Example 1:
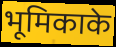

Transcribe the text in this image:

भूमिकाके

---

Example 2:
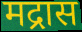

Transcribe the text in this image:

मद्रास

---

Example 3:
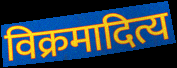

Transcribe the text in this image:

विक्रमादित्य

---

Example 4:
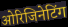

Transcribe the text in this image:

ओरिजिनेटिंग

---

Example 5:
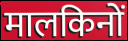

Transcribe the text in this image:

मालकिनों